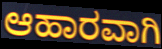
ಆಹಾರವಾಗಿ